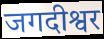
जगदीश्वर